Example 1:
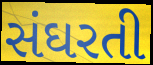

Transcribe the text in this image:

સંઘરતી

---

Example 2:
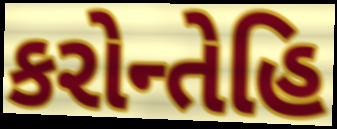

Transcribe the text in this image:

કરોન્તેહિ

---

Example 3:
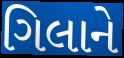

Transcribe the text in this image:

ગિલાને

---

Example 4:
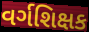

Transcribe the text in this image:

વર્ગશિક્ષક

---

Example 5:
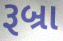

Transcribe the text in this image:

રૂબ્રા